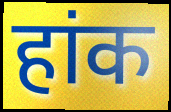
हांक